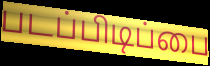
படப்பிடிப்பை